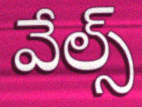
వేల్స్